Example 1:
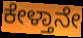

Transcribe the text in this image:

ಕೇಳ್ತಾನೇ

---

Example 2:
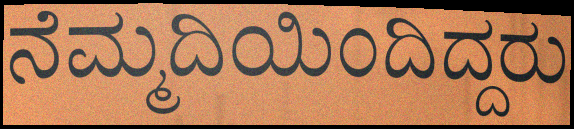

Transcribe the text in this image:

ನೆಮ್ಮದಿಯಿಂದಿದ್ದರು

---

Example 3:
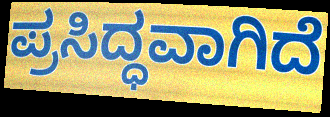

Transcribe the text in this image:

ಪ್ರಸಿದ್ಧವಾಗಿದೆ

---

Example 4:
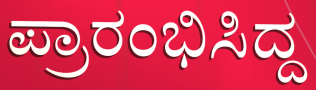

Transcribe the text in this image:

ಪ್ರಾರಂಭಿಸಿದ್ದ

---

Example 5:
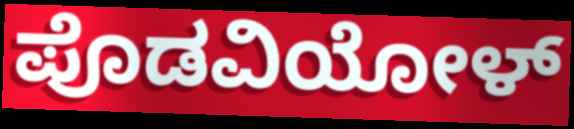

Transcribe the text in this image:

ಪೊಡವಿಯೋಳ್